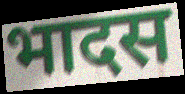
भादस